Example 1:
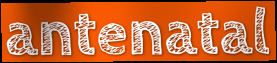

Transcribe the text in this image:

antenatal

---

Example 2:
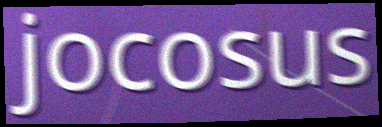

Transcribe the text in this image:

jocosus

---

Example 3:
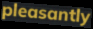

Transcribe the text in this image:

pleasantly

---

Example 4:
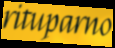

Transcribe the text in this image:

rituparno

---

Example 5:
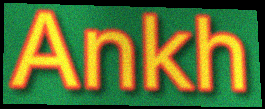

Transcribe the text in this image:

Ankh